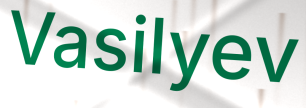
Vasilyev